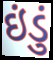
ઇંડું